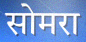
सोमरा